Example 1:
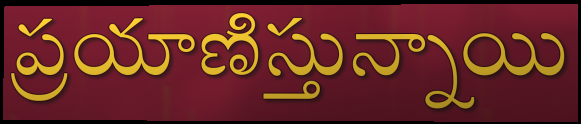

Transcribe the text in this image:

ప్రయాణిస్తున్నాయి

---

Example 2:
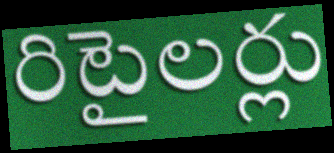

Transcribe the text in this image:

రిటైలర్లు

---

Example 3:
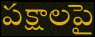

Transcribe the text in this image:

పక్షాలపై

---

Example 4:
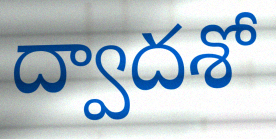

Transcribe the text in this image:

ద్వాదశో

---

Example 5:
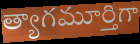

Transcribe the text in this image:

త్యాగమూర్తిగా